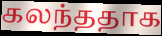
கலந்ததாக